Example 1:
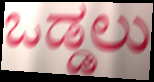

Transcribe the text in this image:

ಒಡ್ಡಲು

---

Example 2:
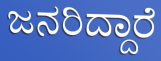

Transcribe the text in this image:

ಜನರಿದ್ದಾರೆ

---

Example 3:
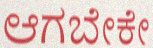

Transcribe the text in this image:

ಆಗಬೇಕೇ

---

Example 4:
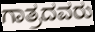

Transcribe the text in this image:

ಗಾತ್ರದವರು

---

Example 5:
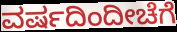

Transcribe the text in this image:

ವರ್ಷದಿಂದೀಚೆಗೆ